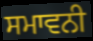
ਸਮਾਵਨੀ